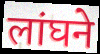
लांघने